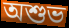
অশুভ